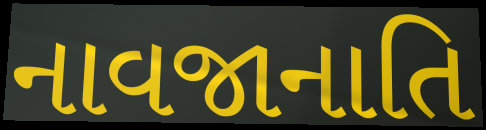
નાવજાનાતિ